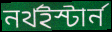
নর্থইস্টার্ন